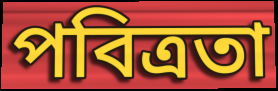
পবিত্রতা